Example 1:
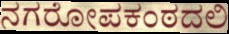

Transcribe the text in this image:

ನಗರೋಪಕಂಠದಲಿ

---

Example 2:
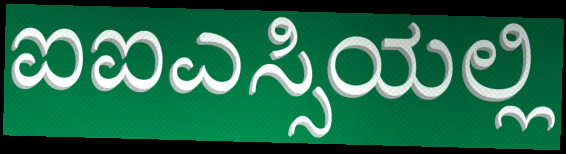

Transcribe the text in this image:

ಐಐಎಸ್ಸಿಯಲ್ಲಿ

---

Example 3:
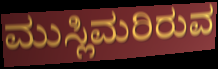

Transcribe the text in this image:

ಮುಸ್ಲಿಮರಿರುವ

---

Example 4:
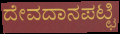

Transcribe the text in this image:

ದೇವದಾನಪಟ್ಟಿ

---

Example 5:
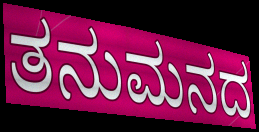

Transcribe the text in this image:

ತನುಮನದ